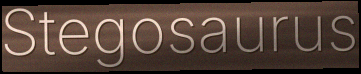
Stegosaurus